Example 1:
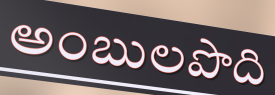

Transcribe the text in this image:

అంబులపొది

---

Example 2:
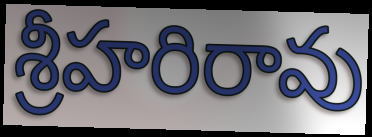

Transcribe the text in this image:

శ్రీహరిరావు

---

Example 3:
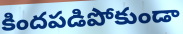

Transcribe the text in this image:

కిందపడిపోకుండా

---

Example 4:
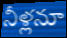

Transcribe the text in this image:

నీళ్లనూ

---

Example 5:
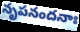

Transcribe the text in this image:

నృపనందనాః